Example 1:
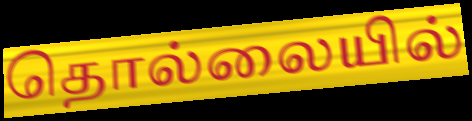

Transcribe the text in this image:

தொல்லையில்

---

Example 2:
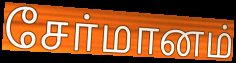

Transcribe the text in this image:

சேர்மானம்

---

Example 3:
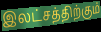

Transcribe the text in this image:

இலட்சத்திற்கும்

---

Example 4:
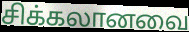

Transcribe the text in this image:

சிக்கலானவை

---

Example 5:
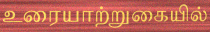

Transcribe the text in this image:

உரையாற்றுகையில்